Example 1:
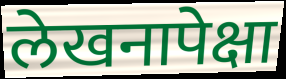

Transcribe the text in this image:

लेखनापेक्षा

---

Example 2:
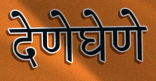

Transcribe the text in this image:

देणेघेणे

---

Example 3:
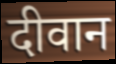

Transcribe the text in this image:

दीवान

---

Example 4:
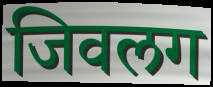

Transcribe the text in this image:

जिवलग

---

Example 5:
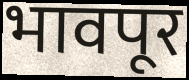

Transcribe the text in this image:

भावपूर